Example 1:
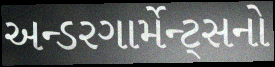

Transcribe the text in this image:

અન્ડરગાર્મેન્ટ્સનો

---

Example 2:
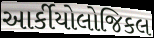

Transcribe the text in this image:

આર્કીયોલોજિકલ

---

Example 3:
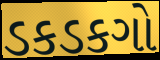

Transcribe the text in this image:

ડકડકગો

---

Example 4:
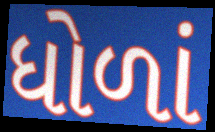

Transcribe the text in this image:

ધોળાં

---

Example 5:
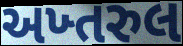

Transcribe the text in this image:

અખ્તરુલ